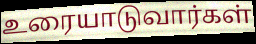
உரையாடுவார்கள்